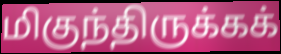
மிகுந்திருக்கக்